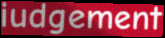
iudgement